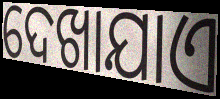
ଦେଖାଯାଏ